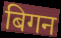
बिगन